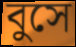
বুসে